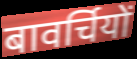
बावर्चियों